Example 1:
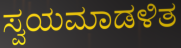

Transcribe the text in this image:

ಸ್ವಯಮಾಡಳಿತ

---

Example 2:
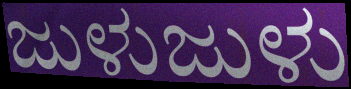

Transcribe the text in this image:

ಜುಳುಜುಳು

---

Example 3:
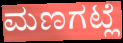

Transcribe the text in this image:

ಮಣಗಟ್ಲೆ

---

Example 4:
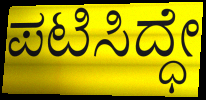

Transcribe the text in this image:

ಪಟಿಸಿದ್ಧೇ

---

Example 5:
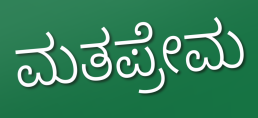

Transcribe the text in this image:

ಮತಪ್ರೇಮ